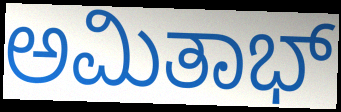
ಅಮಿತಾಭ್